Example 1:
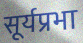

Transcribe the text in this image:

सूर्यप्रभा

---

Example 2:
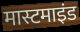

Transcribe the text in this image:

मास्टमाइंड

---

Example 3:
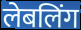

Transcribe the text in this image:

लेबलिंग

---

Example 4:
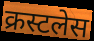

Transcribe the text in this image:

क्रस्टलेस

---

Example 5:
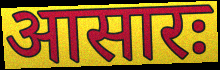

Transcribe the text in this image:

आसारः